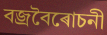
বজ্ৰবৈৰোচনী